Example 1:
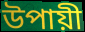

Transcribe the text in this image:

উপায়ী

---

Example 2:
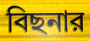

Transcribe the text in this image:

বিছনার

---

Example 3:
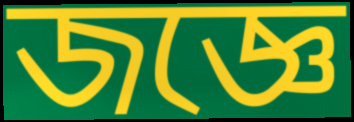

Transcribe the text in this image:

জজ্ঞে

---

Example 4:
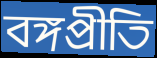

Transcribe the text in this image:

বঙ্গপ্রীতি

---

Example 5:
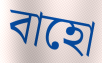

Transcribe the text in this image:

বাহো